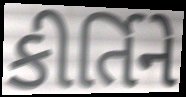
કીર્તિને